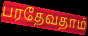
பரதேவதாம்